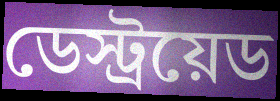
ডেস্ট্রয়েড